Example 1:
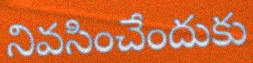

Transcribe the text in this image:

నివసించేందుకు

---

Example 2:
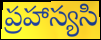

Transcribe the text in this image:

ప్రహాస్యసి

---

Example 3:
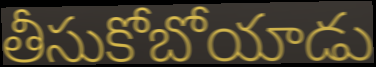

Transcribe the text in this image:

తీసుకోబోయాడు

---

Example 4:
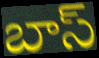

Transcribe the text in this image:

బాస్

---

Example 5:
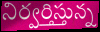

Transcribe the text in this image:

నిర్వర్తిస్తున్న